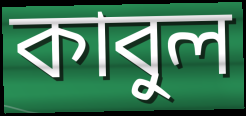
কাবুল